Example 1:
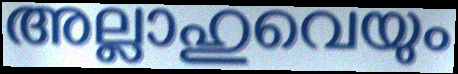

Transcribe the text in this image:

അല്ലാഹുവെയും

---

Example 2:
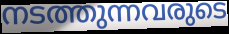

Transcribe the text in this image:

നടത്തുന്നവരുടെ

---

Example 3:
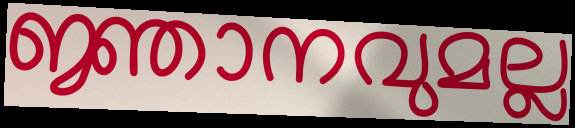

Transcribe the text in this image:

ജ്ഞാനവുമല്ല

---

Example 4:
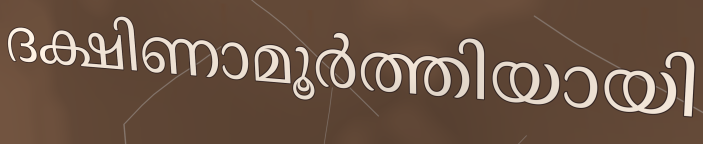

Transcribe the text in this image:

ദക്ഷിണാമൂർത്തിയായി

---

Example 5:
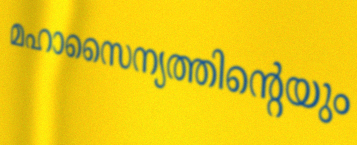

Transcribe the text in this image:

മഹാസൈന്യത്തിന്റെയും